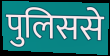
पुलिससे